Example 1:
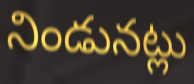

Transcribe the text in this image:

నిండునట్లు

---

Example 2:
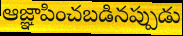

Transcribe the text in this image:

ఆజ్ఞాపించబడినప్పుడు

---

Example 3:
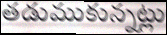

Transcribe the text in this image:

తడుముకున్నట్లు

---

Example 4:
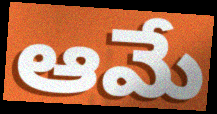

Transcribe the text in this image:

ఆమే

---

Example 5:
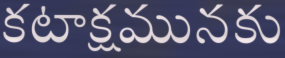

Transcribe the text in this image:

కటాక్షమునకు